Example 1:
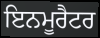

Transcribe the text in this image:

ਇਨਮੂਰੈਟਰ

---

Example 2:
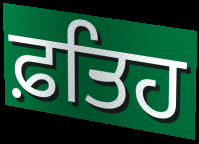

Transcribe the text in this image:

ਫ਼ਤਿਹ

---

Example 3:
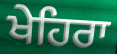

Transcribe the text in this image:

ਖੇਹਿਰਾ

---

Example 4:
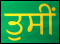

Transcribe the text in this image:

ਤੁਸੀਂ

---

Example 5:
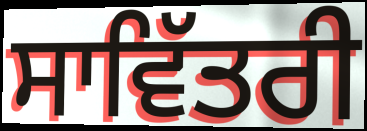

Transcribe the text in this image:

ਸਾਵਿੱਤਰੀ